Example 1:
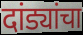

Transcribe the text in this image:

दांड्यांचा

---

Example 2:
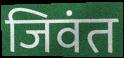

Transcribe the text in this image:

जिवंत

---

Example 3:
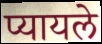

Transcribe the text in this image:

प्यायले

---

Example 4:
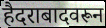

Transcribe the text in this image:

हैदराबादवरून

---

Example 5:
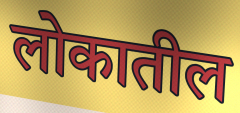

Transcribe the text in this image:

लोकातील